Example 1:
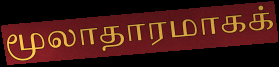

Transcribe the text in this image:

மூலாதாரமாகக்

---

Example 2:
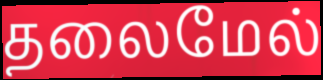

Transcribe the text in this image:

தலைமேல்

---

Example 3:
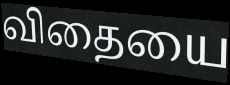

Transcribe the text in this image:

விதையை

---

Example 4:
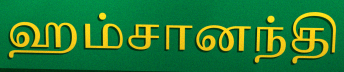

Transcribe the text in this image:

ஹம்சானந்தி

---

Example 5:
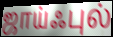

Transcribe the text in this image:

ஜாய்ஃபுல்